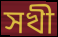
সখী